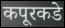
कपूरकडे